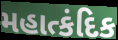
મહાત્કંદિક